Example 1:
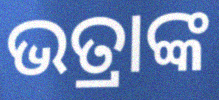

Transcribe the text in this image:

ଭତ୍ରାଙ୍କ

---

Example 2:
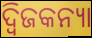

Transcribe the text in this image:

ଦ୍ୱିଜକନ୍ୟା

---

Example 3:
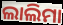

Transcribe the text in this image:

ଲାଲିମା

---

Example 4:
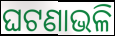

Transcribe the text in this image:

ଘଟଣାଭଳି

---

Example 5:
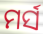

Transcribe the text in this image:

ମର୍ସ